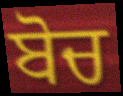
ਬੋਚ